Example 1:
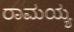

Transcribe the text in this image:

ರಾಮಯ್ಯ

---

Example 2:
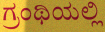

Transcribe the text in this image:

ಗ್ರಂಥಿಯಲ್ಲಿ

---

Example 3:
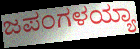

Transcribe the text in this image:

ಜಪಂಗಳಯ್ಯಾ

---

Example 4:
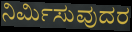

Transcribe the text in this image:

ನಿರ್ಮಿಸುವುದರ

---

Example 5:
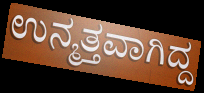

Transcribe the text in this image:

ಉನ್ಮತ್ತವಾಗಿದ್ದ